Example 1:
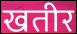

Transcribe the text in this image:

खतीर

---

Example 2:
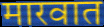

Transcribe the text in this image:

मारवात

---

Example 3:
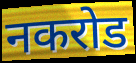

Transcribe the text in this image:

नकरोड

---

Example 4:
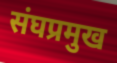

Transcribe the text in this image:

संघप्रमुख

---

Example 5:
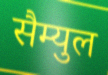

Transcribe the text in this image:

सैम्युल